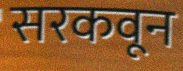
सरकवून